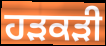
ਹੜਕੜੀ